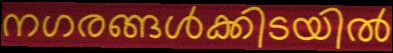
നഗരങ്ങൾക്കിടയിൽ